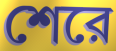
শেরে